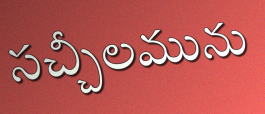
సచ్చీలమును